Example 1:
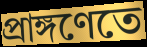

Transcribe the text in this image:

প্রাঙ্গণেতে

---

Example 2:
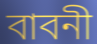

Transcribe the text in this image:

বাবনী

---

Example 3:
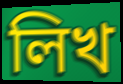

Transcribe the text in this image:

লিখ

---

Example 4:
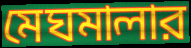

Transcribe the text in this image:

মেঘমালার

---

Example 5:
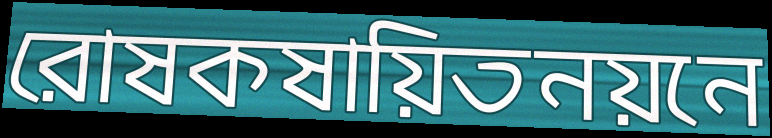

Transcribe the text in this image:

রোষকষায়িতনয়নে